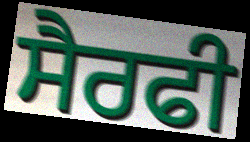
ਸੈਰਫੀ